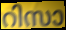
റിസാ